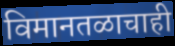
विमानतळाचाही